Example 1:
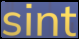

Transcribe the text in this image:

sint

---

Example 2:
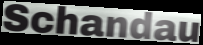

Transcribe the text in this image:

Schandau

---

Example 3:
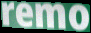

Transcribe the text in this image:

remo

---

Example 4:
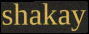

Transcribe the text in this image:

shakay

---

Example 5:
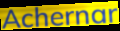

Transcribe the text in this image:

Achernar